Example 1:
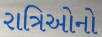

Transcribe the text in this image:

રાત્રિઓનો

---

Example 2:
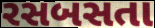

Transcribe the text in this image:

રસબસતા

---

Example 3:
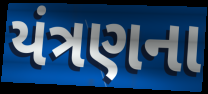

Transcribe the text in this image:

યંત્રણના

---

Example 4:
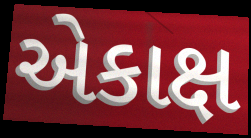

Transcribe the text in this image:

એકાક્ષ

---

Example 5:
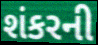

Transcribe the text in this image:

શંકરની